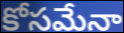
కోసమేనా